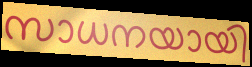
സാധനയായി